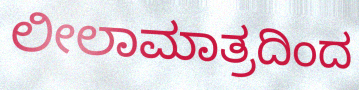
ಲೀಲಾಮಾತ್ರದಿಂದ